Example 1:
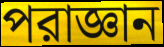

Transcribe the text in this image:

পরাজ্ঞান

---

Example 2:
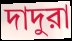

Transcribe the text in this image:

দাদুরা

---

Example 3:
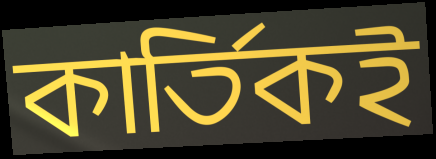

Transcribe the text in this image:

কার্তিকই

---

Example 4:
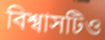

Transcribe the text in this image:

বিশ্বাসটিও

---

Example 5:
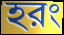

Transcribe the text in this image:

হরং